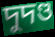
দুদণ্ড